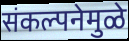
संकल्पनेमुळे